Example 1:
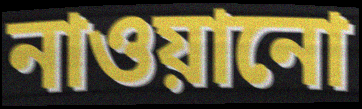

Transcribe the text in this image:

নাওয়ানো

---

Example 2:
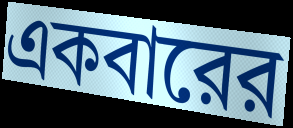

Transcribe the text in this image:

একবারের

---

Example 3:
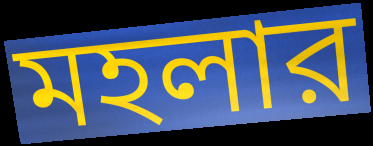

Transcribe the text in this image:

মহলার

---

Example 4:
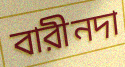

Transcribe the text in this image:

বারীনদা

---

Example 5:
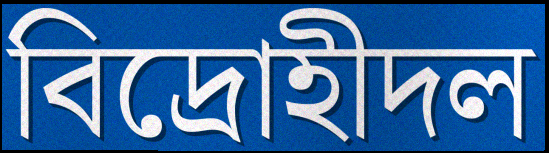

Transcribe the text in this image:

বিদ্রোহীদল